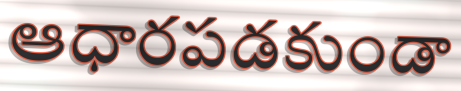
ఆధారపడకుండా